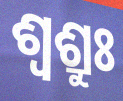
ଶ୍ଵଶ୍ରୁଃ